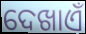
ଦେଖାଏଁ